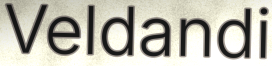
Veldandi